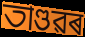
তাণ্ডৱৰ